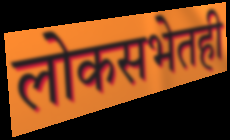
लोकसभेतही